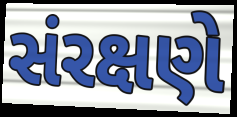
સંરક્ષણે